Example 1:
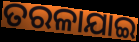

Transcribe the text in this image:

ତରଳାଯାଇ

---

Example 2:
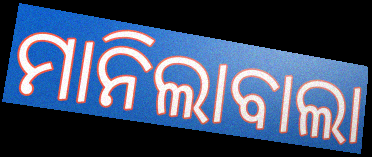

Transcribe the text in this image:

ମାନିଲାବାଲା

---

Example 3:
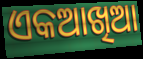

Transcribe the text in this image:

ଏକଆଖିଆ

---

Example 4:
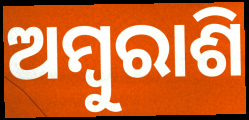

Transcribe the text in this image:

ଅମ୍ୱୁରାଶି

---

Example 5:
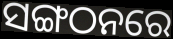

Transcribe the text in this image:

ସଙ୍ଗଠନରେ